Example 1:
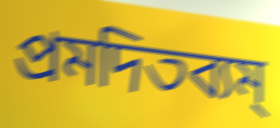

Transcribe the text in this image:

প্রমদিতব্যম্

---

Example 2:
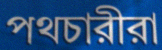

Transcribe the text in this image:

পথচারীরা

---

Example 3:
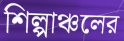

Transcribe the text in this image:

শিল্পাঞ্চলের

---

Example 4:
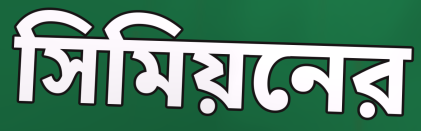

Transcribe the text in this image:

সিমিয়নের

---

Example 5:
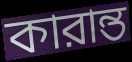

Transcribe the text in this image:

কারান্ত